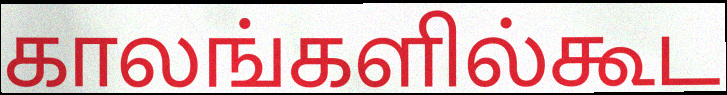
காலங்களில்கூட